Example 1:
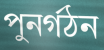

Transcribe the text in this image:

পুনৰ্গঠন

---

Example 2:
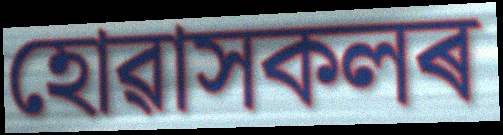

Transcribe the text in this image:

হোৱাসকলৰ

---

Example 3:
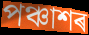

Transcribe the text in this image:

পঞ্চাশৰ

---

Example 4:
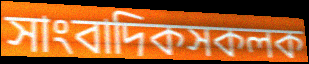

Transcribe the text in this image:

সাংবাদিকসকলক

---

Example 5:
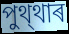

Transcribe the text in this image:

পুথ্থাৰ